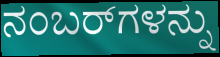
ನಂಬರ್‌ಗಳನ್ನು